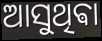
ଆସୁଥିଵା